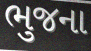
ભુજના